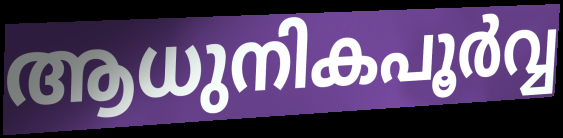
ആധുനികപൂർവ്വ